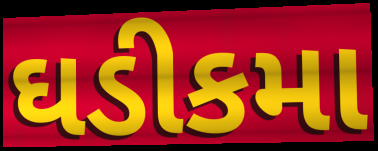
ઘડીકમા